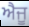
ਐਜੂ